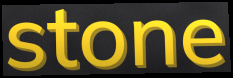
stone